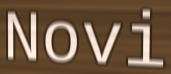
Novi